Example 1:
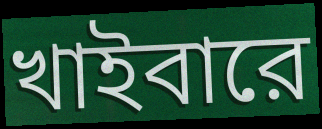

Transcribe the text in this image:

খাইবারে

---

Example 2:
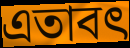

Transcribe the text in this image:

এতাবৎ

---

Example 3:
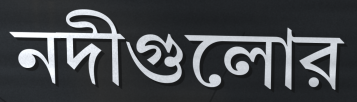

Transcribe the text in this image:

নদীগুলোর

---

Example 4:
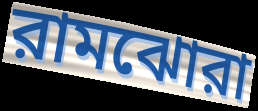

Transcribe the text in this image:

রামঝোরা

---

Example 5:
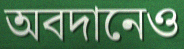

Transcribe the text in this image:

অবদানেও